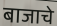
बाजाचे